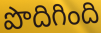
పొదిగింది